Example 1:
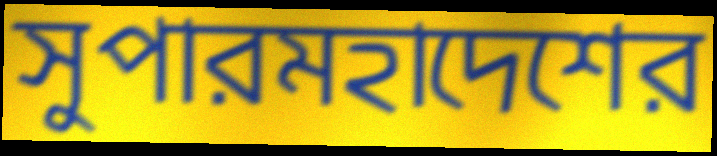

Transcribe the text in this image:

সুপারমহাদেশের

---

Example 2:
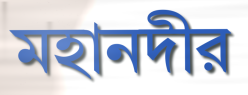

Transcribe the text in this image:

মহানদীর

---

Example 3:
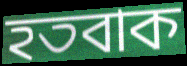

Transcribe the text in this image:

হতবাক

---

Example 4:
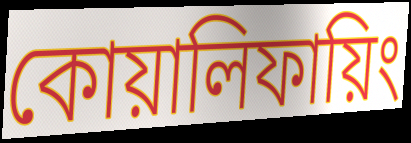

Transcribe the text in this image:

কোয়ালিফায়িং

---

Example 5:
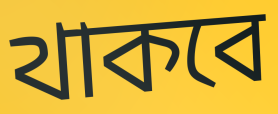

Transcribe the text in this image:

থাকবে